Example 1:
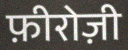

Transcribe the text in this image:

फ़ीरोज़ी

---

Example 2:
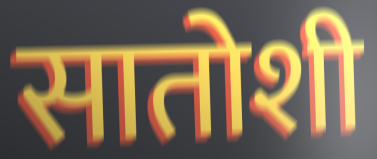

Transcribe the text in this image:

सातोशी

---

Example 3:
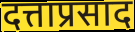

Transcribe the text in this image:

दत्ताप्रसाद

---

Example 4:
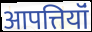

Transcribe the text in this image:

आपत्तियॉं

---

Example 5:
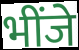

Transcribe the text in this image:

भींजे